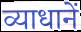
व्याधानें